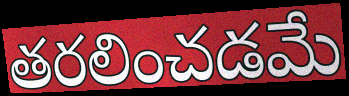
తరలించడమే